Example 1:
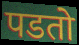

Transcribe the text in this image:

पडतो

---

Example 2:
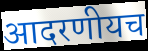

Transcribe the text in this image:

आदरणीयच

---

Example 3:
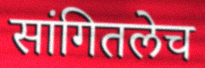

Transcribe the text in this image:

सांगितलेच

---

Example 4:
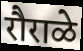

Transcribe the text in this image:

रौराळे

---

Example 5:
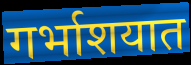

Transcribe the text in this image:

गर्भाशयात